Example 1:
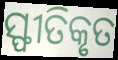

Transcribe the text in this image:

ସ୍ଫୀତିକୃତ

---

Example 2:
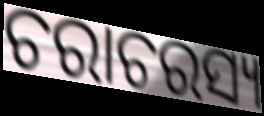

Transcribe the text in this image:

ଚରାଚରସ୍ୟ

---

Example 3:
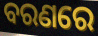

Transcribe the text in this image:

ବରଣରେ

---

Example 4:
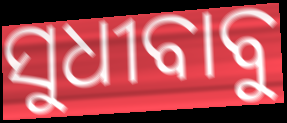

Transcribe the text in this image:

ସୁଧୀବାବୁ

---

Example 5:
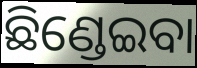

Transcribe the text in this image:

ଛିଣ୍ଡେଇବା